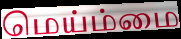
மெய்ம்மை